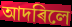
আদৰিলে